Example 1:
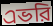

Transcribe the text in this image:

এভরি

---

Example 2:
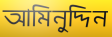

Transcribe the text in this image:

আমিনুদ্দিন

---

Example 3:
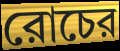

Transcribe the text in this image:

রোচের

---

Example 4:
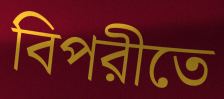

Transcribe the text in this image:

বিপরীতে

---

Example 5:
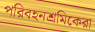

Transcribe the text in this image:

পরিবহনশ্রমিকেরা